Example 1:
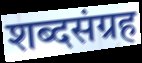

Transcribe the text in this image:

शब्दसंग्रह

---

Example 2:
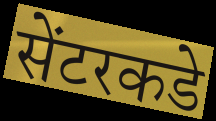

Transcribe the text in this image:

सेंटरकडे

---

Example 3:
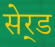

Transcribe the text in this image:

सेर्ड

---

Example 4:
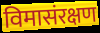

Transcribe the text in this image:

विमासंरक्षण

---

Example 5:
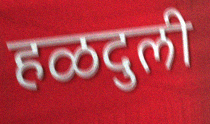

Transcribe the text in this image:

हळदुली